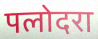
पलोदरा